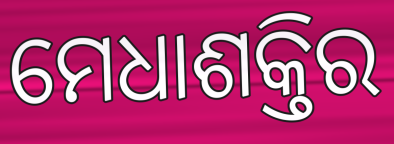
ମେଧାଶକ୍ତିର